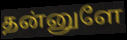
தன்னுளே